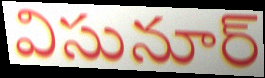
విసునూర్